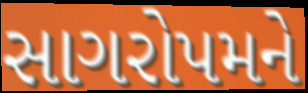
સાગરોપમને